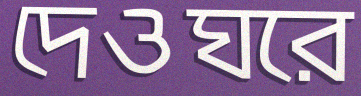
দেওঘরে